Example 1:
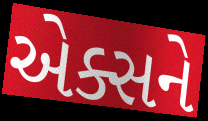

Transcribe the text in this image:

એક્સને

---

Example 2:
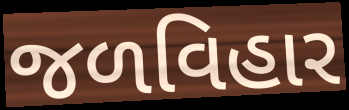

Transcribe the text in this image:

જળવિહાર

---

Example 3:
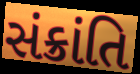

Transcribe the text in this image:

સંક્રાંતિ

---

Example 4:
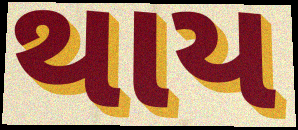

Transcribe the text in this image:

થાય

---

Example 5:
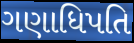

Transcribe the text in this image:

ગણાધિપતિ